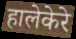
हालेकेरे